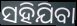
ସହିଯିବା